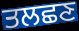
ਤਲਛਣ